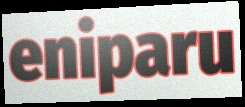
eniparu